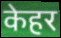
केहर